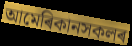
আমেৰিকানসকলৰ